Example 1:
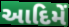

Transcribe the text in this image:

આદિમેં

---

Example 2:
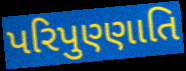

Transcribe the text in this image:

પરિપુણ્ણાતિ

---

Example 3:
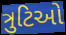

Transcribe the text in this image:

ત્રુટિઓ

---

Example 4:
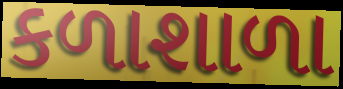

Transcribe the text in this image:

કળાશાળા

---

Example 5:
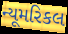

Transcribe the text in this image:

ન્યૂમરિકલ